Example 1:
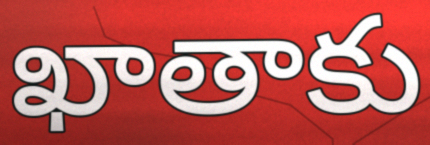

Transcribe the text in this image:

ఖాతాకు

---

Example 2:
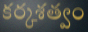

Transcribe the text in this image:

కర్కశత్వం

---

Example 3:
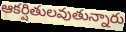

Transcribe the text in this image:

ఆకర్షితులవుతున్నారు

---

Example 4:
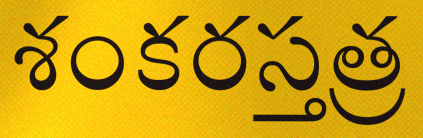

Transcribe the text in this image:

శంకరస్తత్ర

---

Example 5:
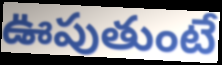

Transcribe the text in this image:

ఊపుతుంటే